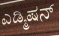
ಎಡ್ಮಿಷನ್